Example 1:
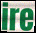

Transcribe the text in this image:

ire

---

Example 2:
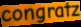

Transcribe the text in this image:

congratz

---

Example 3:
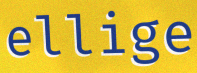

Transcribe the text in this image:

ellige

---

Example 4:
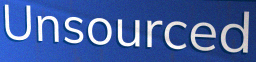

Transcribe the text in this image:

Unsourced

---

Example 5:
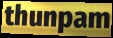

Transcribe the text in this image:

thunpam